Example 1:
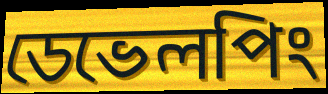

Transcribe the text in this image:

ডেভেলপিং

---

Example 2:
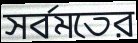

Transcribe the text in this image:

সর্বমতের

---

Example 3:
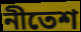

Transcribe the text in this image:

নীতেশ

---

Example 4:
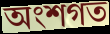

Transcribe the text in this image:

অংশগত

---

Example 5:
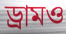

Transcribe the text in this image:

ড্রামও